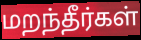
மறந்தீர்கள்